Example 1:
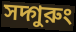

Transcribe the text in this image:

সদ্গুরুং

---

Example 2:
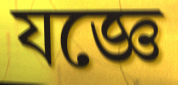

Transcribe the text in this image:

যজ্ঞে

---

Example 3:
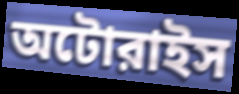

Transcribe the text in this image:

অটোরাইস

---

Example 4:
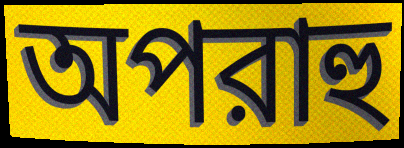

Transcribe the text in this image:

অপরাহু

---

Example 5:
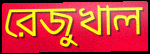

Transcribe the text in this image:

রেজুখাল